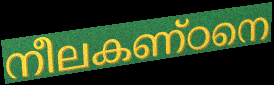
നീലകണ്ഠനെ